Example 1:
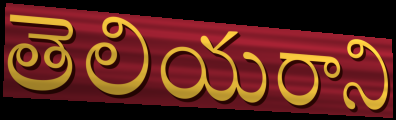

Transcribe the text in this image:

తెలియరాని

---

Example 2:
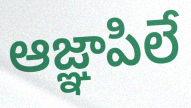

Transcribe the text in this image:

ఆజ్ఞాపిలే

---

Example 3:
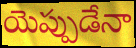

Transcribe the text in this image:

యెప్పుడేనా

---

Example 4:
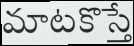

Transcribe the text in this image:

మాటకొస్తే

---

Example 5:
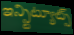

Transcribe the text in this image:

ఇన్స్టిట్యూట్స్